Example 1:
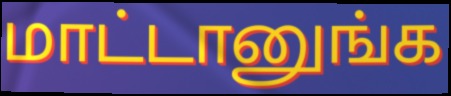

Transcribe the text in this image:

மாட்டானுங்க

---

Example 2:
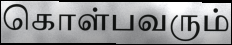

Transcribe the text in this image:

கொள்பவரும்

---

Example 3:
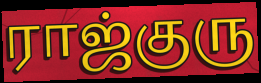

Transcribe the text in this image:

ராஜ்குரு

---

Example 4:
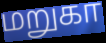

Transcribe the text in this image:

மறுகா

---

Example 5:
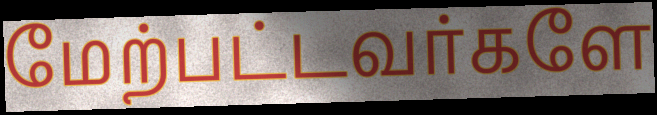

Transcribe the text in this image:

மேற்பட்டவர்களே